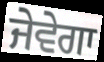
ਜੇਵੇਗਾ